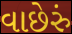
વાછેરું